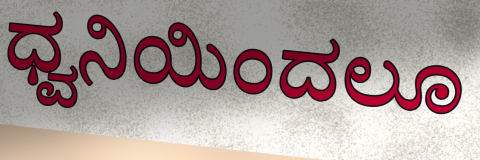
ಧ್ವನಿಯಿಂದಲೂ